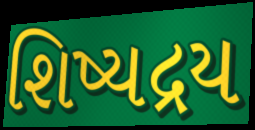
શિષ્યદ્રય